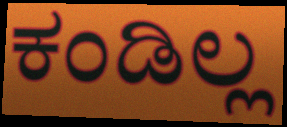
ಕಂಡಿಲ್ಲ